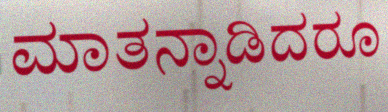
ಮಾತನ್ನಾಡಿದರೂ